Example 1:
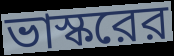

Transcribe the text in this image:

ভাস্করের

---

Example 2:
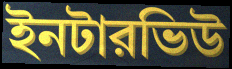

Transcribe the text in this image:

ইনটারভিউ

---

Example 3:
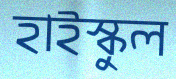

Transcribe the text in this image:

হাইস্কুল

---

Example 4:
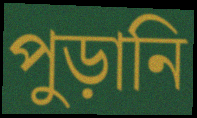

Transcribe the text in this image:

পুড়ানি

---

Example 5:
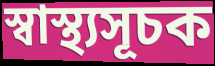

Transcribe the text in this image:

স্বাস্থ্যসূচক